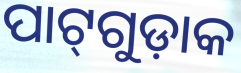
ପାଟ୍‌ଗୁଡ଼ାକ